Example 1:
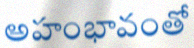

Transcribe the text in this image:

అహంభావంతో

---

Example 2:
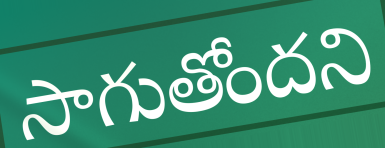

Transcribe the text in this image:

సాగుతోందని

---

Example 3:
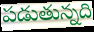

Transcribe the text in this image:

పడుతున్నది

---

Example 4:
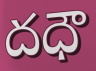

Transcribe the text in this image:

దధౌ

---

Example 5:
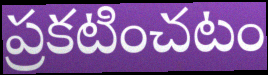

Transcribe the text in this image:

ప్రకటించటం